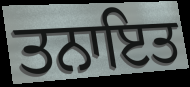
ਤਨਾਇਤ